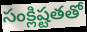
సంక్లిష్టతతో